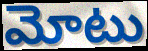
మోటు